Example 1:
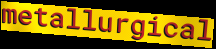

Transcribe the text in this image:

metallurgical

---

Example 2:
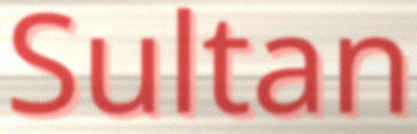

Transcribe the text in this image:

Sultan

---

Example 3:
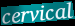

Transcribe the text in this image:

cervical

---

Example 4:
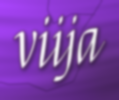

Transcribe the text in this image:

viija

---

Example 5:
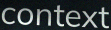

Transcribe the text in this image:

context